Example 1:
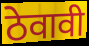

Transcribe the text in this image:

ठेवावी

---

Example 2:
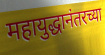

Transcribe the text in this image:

महायुद्धानंतरच्या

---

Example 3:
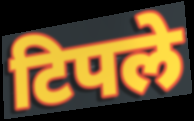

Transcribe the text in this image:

टिपले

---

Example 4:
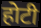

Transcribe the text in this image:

होटी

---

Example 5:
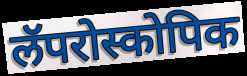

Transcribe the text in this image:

लॅपरोस्कोपिक